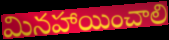
మినహాయించాలి